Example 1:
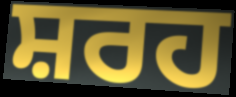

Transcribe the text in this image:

ਸ਼ਰਹ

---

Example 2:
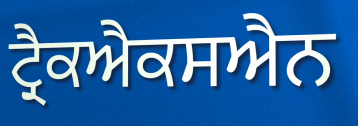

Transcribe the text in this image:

ਟ੍ਰੈਕਐਕਸਐਨ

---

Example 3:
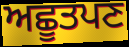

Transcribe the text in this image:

ਅਛੂਤਪਣ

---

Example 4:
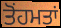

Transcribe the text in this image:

ਤੋਂਹਮਤਾਂ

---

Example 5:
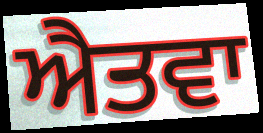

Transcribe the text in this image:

ਐਤਵਾ